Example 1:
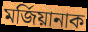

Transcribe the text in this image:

মৰ্জিয়ানাক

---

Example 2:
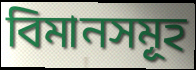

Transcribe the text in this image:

বিমানসমূহ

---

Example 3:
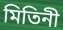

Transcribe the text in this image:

মিতিনী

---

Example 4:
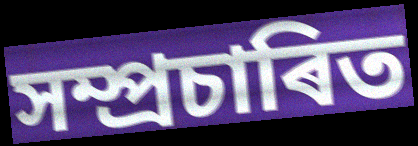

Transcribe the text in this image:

সম্প্ৰচাৰিত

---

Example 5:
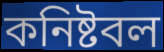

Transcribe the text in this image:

কনিষ্টবল